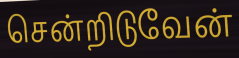
சென்றிடுவேன்